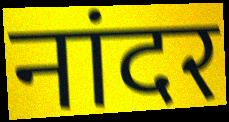
नांदर